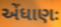
એંધાણઃ